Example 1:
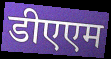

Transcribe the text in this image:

डीएएम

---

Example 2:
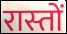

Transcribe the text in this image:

रास्‍तों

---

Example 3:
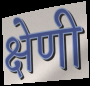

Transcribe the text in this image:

क्षेणी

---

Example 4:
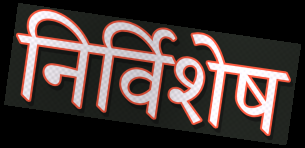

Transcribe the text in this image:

निर्विशेष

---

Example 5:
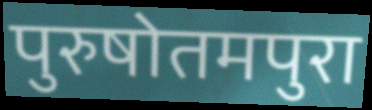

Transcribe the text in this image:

पुरुषोतमपुरा